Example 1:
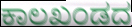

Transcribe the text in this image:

ಕಾಲಖಂಡದ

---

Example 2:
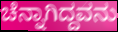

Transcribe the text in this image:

ಚೆನ್ನಾಗಿದ್ದವನು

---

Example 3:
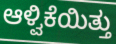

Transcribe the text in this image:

ಆಳ್ವಿಕೆಯಿತ್ತು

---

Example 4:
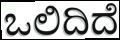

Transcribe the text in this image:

ಒಲಿದಿದೆ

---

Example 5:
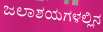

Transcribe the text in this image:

ಜಲಾಶಯಗಳಲ್ಲಿನ